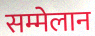
सम्मेलान